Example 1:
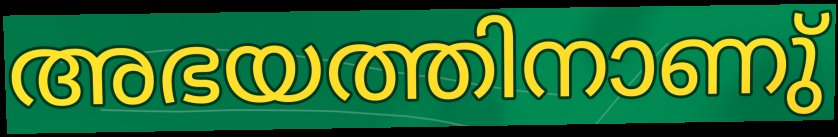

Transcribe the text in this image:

അഭയത്തിനാണു്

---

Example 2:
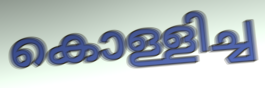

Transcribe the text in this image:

കൊള്ളിച്ച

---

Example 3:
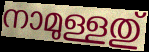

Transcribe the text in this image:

നാമുള്ളതു്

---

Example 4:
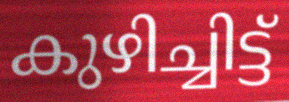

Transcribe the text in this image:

കുഴിച്ചിട്ട്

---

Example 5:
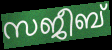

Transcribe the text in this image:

സജീബ്